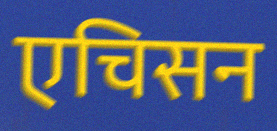
एचिसन